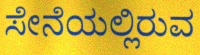
ಸೇನೆಯಲ್ಲಿರುವ